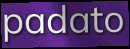
padato